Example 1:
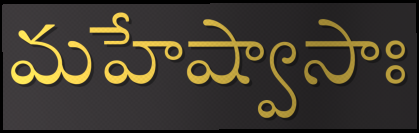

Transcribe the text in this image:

మహేష్వాసాః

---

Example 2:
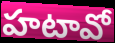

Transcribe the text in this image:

హటావో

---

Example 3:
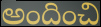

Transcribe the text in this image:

అందించి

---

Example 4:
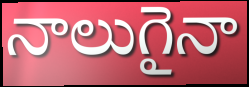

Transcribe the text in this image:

నాలుగైనా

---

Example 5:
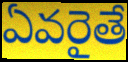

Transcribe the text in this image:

ఏవరైతే